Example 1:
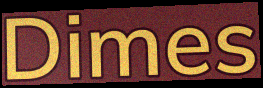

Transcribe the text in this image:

Dimes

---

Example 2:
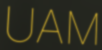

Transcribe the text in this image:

UAM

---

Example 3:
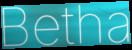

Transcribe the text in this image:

Betha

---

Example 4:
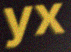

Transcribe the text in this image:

yx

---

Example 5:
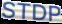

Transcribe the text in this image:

STDP